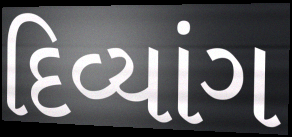
દિવ્યાંગ